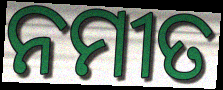
ନମୀତ